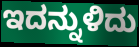
ಇದನ್ನುಳಿದು